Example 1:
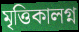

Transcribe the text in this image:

মৃত্তিকালগ্ন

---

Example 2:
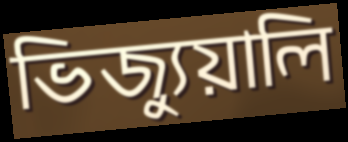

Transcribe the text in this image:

ভিজ্যুয়ালি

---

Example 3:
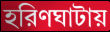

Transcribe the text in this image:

হরিণঘাটায়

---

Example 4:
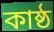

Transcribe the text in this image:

কাষ্ঠ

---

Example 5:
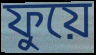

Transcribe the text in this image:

ফুয়ে